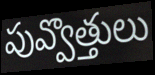
పువ్వొత్తులు